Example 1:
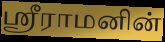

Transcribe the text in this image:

ஸ்ரீராமனின்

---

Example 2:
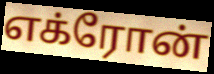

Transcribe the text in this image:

எக்ரோன்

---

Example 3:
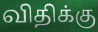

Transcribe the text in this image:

விதிக்கு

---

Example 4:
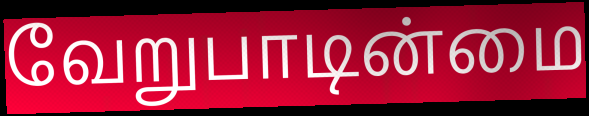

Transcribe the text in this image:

வேறுபாடின்மை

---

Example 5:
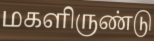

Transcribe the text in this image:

மகளிருண்டு